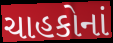
ચાહકોનાં